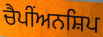
ਚੈਪੀਂਅਨਸ਼ਿਪ